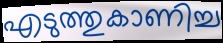
എടുത്തുകാണിച്ച